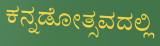
ಕನ್ನಡೋತ್ಸವದಲ್ಲಿ